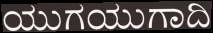
ಯುಗಯುಗಾದಿ